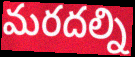
మరదల్ని